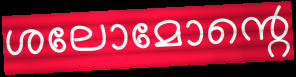
ശലോമോന്റെ